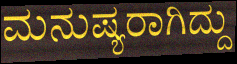
ಮನುಷ್ಯರಾಗಿದ್ದು